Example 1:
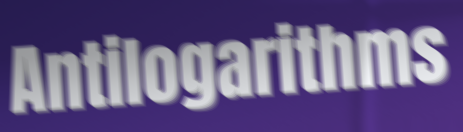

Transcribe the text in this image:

Antilogarithms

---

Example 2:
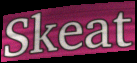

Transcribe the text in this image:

Skeat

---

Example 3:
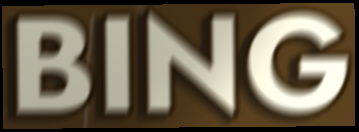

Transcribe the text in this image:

BING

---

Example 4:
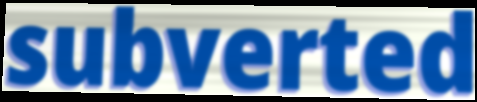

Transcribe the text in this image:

subverted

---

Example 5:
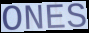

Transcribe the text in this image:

ONES